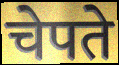
चेपते